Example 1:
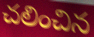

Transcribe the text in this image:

చలించిన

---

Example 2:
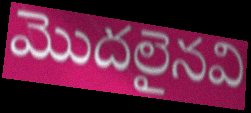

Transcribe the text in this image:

మొదలైనవి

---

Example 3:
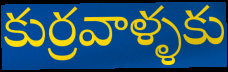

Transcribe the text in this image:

కుర్రవాళ్ళకు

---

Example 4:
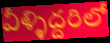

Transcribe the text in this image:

వీళ్ళిద్దరిలో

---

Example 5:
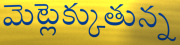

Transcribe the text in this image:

మెట్లెక్కుతున్న